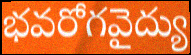
భవరోగవైద్యు